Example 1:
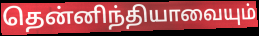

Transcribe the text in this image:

தென்னிந்தியாவையும்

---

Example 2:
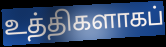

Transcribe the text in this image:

உத்திகளாகப்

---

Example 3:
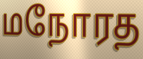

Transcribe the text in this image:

மநோரத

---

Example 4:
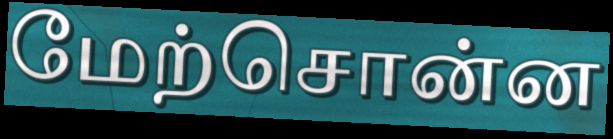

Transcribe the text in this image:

மேற்சொன்ன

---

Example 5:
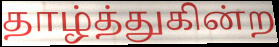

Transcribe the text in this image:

தாழ்த்துகின்ற